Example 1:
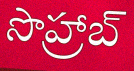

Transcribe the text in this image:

సొహ్రాబ్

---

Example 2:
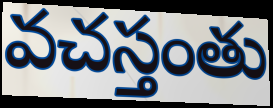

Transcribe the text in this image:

వచస్తంతు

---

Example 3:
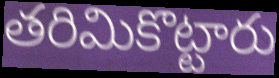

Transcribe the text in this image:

తరిమికొట్టారు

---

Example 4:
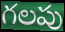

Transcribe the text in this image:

గలపు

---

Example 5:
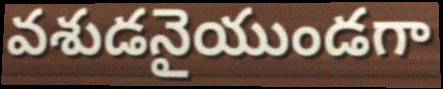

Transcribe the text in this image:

వశుడనైయుండగా